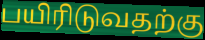
பயிரிடுவதற்கு